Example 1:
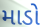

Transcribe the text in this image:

માડો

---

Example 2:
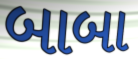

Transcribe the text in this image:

બાબા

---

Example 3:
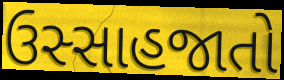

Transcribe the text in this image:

ઉસ્સાહજાતો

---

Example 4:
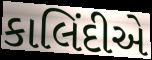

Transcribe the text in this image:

કાલિંદીએ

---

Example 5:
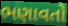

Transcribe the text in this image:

ભણાવતો